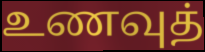
உணவுத்